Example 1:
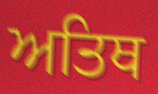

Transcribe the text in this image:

ਅਤਿਥ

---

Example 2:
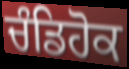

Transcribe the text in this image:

ਚੰਡਿਹੋਕ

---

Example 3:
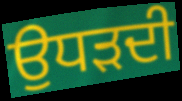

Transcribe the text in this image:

ਉਧੜਦੀ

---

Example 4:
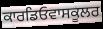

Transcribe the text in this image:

ਕਾਰਡਿਓਵਾਸਕੂਲਰ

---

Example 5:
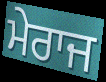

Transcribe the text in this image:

ਮੇਰਾਜ